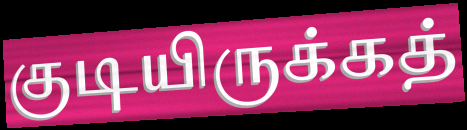
குடியிருக்கத்